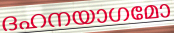
ദഹനയാഗമോ